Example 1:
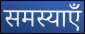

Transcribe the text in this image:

समस्याएँ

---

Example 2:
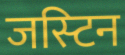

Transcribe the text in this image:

जस्‍टिन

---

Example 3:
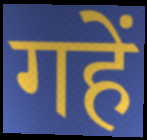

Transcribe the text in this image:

गहें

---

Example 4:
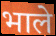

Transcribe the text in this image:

भाले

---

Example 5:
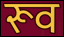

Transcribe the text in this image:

रूव